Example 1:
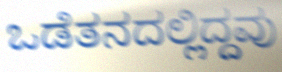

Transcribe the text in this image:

ಒಡೆತನದಲ್ಲಿದ್ದವು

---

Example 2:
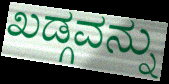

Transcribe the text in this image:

ಖಡ್ಗವನ್ನು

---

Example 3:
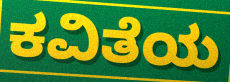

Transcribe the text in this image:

ಕವಿತೆಯ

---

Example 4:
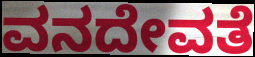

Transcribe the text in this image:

ವನದೇವತೆ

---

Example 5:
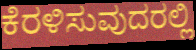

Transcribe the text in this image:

ಕೆರಳಿಸುವುದರಲ್ಲಿ